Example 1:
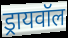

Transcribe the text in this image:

ड्रायवॉल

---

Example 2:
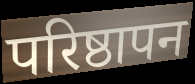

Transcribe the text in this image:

परिष्ठापन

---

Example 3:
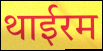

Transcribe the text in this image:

थाईरम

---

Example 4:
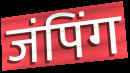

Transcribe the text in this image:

जंपिंग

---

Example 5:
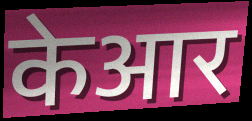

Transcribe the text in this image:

केआर